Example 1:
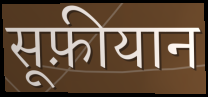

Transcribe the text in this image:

सूफ़ीयान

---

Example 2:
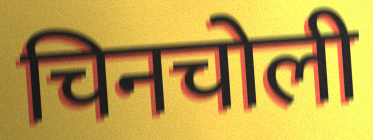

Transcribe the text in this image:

चिनचोली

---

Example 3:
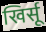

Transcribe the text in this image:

खिर्सू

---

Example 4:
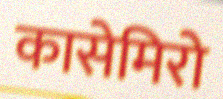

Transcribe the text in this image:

कासेमिरो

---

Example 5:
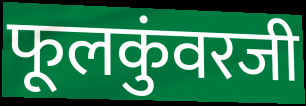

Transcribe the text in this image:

फूलकुंवरजी